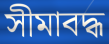
সীমাবদ্ধ